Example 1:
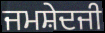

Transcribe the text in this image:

ਜਮਸ਼ੇਦਜੀ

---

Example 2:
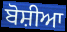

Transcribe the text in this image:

ਬੋਸ਼ੀਆ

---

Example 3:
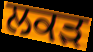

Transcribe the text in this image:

ਲਕੜ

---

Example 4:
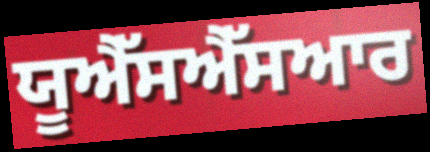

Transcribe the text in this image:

ਯੂਐੱਸਐੱਸਆਰ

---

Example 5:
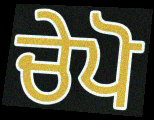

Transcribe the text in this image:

ਚੇਪੋ